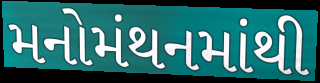
મનોમંથનમાંથી